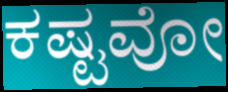
ಕಷ್ಟವೋ